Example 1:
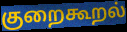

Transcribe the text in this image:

குறைகூறல்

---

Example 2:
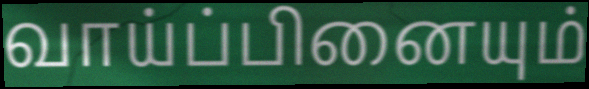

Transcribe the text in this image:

வாய்ப்பினையும்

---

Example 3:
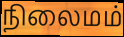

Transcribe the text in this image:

நிலைமம்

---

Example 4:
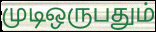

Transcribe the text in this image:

முடிஒருபதும்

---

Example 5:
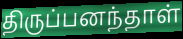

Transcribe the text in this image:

திருப்பனந்தாள்